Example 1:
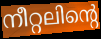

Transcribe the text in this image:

നീറ്റലിന്റെ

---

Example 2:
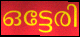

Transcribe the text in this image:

ഒട്ടേരി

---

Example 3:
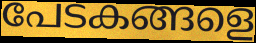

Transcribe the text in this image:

പേടകങ്ങളെ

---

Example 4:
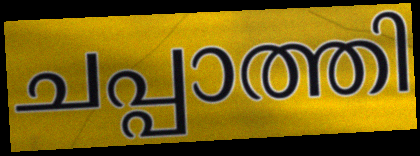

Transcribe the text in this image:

ചപ്പാത്തി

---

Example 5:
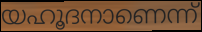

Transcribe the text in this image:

യഹൂദനാണെന്ന്